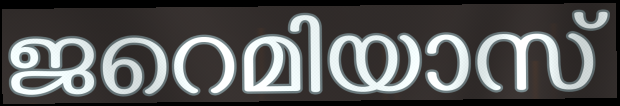
ജറെമിയാസ്